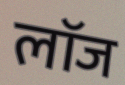
लॉज